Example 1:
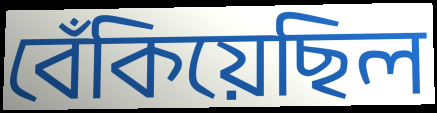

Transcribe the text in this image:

বেঁকিয়েছিল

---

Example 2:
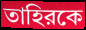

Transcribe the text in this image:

তাহিরকে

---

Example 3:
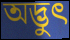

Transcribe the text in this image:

অদ্ভুৎ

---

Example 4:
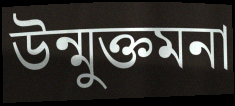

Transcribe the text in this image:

উন্মুক্তমনা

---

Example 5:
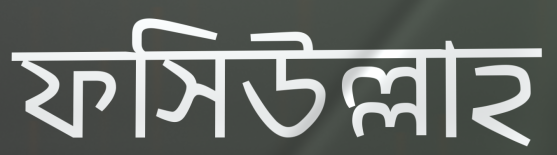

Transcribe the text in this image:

ফসিউল্লাহ